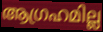
ആഗ്രഹമില്ല